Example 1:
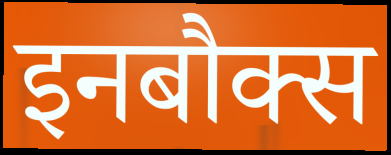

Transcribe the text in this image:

इनबौक्स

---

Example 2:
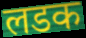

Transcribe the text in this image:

लडक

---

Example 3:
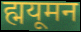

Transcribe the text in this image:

ह्मयूमन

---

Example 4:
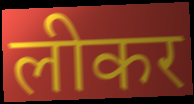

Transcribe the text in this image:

लीकर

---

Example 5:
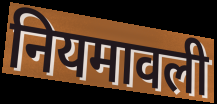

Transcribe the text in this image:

नियमावली